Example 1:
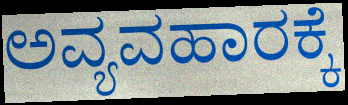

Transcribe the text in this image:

ಅವ್ಯವಹಾರಕ್ಕೆ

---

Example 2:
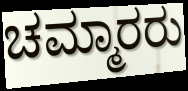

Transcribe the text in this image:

ಚಮ್ಮಾರರು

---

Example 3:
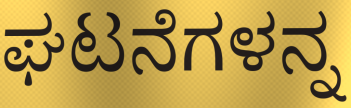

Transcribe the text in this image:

ಘಟನೆಗಳನ್ನ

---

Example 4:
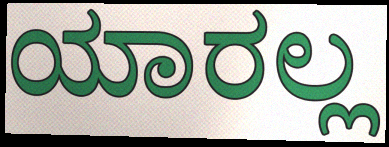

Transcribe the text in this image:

ಯಾರಲ್ಲ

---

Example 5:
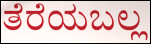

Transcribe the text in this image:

ತೆರೆಯಬಲ್ಲ